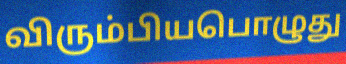
விரும்பியபொழுது